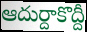
ఆదుర్దాకొద్దీ